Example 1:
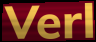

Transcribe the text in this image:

Verl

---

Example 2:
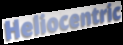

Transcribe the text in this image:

Heliocentric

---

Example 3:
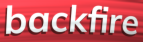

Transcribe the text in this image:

backfire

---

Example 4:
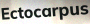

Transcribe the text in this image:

Ectocarpus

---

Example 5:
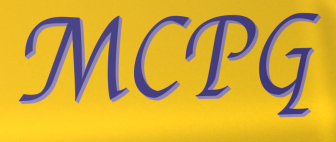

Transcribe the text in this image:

MCPG